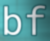
bf